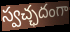
స్వచ్ఛదంగా